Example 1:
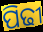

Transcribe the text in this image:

ପିଢୀ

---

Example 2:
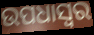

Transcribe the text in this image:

ଉପଧାସ୍ୱର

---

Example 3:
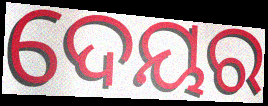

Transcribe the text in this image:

ଦେୟର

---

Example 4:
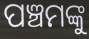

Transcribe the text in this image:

ପଞ୍ଚମଙ୍କୁ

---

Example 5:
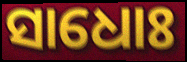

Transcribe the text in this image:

ସାଧୋଃ